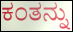
ಕಂತನ್ನು